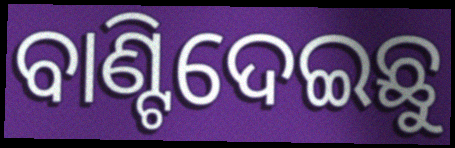
ବାଣ୍ଟିଦେଇଛୁ